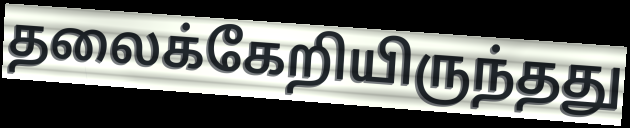
தலைக்கேறியிருந்தது